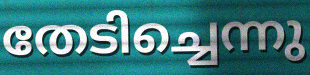
തേടിച്ചെന്നു